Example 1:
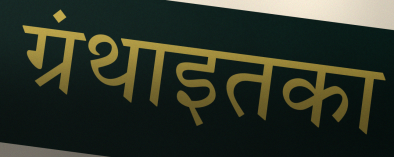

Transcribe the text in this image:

ग्रंथाइतका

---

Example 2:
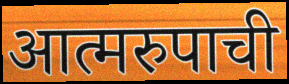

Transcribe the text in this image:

आत्मरुपाची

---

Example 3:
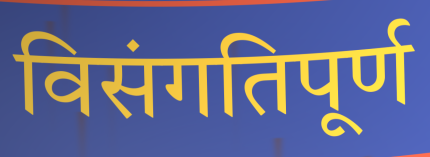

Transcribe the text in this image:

विसंगतिपूर्ण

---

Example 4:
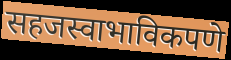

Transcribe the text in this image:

सहजस्वाभाविकपणे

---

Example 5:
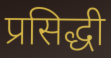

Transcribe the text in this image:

प्रसिद्धी